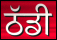
ਠੱਡੀ